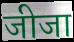
जीजा